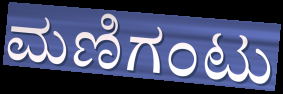
ಮಣಿಗಂಟು